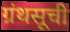
ग्रंथसूची